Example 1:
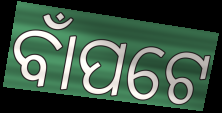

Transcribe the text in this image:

ବାଁପଟେ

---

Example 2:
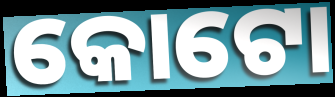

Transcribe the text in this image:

କୋଟୋ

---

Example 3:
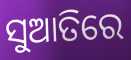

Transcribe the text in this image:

ସୁଆତିରେ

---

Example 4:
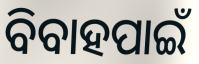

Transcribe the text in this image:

ବିବାହପାଇଁ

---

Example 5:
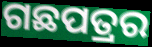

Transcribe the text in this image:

ଗଛପତ୍ରର